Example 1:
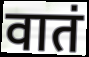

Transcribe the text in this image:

वातं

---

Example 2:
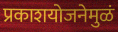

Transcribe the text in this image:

प्रकाशयोजनेमुळं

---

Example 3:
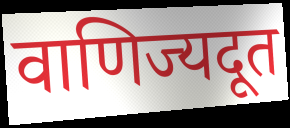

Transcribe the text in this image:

वाणिज्यदूत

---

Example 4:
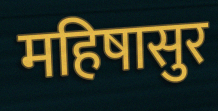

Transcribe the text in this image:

महिषासुर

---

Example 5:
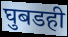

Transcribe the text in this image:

घुबडही